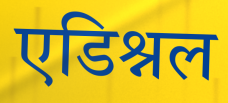
एडिश्नल